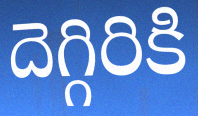
దెగ్గిరికి